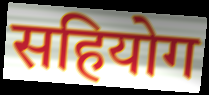
सहियोग